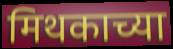
मिथकाच्या